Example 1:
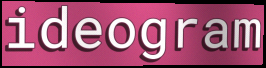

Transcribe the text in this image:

ideogram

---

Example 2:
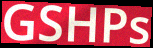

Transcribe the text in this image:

GSHPs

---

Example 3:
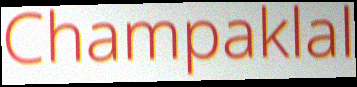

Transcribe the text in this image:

Champaklal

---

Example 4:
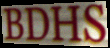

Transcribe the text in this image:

BDHS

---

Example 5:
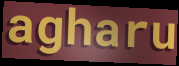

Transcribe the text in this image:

agharu